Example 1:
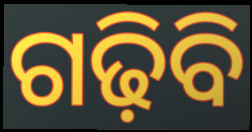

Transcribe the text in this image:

ଗଢ଼ିବି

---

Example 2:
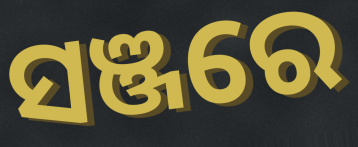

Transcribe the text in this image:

ସଞ୍ଜରେ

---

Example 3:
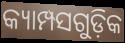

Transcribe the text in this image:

କ୍ୟାମ୍ପସଗୁଡ଼ିକ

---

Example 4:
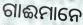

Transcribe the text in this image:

ଗାଈମାନେ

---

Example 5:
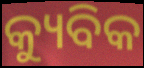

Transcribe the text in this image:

କ୍ୟୁବିକ